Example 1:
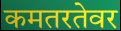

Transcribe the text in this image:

कमतरतेवर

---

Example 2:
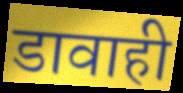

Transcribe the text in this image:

डावाही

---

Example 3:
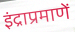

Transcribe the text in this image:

इंद्राप्रमाणें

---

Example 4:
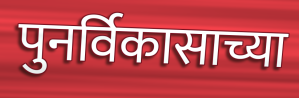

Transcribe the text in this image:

पुनर्विकासाच्या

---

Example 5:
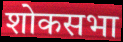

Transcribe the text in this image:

शोकसभा